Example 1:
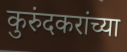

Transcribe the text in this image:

कुरुंदकरांच्या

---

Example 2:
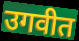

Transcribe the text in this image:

उगवीत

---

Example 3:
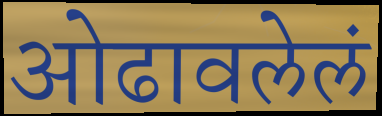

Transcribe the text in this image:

ओढावलेलं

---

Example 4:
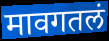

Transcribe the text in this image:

मावगतलं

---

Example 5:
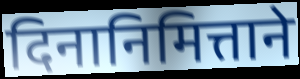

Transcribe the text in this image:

दिनानिमित्ताने